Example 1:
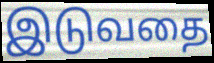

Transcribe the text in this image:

இடுவதை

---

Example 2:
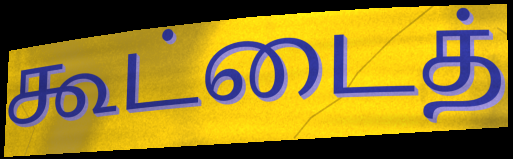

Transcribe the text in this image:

கூட்டைத்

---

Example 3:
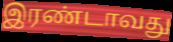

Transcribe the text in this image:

இரண்டாவது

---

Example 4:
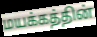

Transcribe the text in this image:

மயக்கத்தின்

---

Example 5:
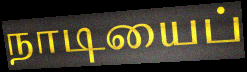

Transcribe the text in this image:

நாடியைப்